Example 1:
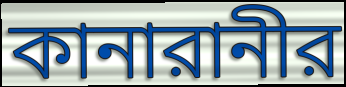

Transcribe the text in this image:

কানারানীর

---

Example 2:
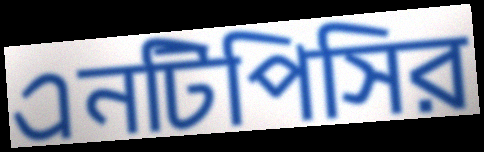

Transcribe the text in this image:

এনটিপিসির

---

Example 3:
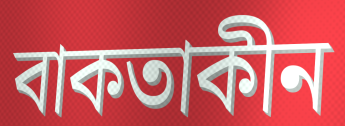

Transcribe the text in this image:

বাকতাকীন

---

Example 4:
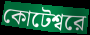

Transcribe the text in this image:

কোটেশ্বরে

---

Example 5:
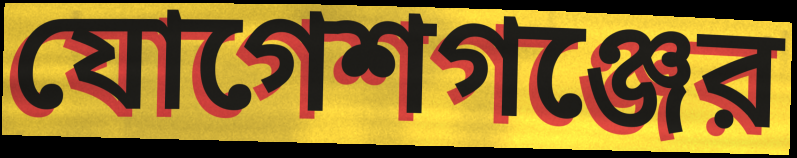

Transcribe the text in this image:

যোগেশগঞ্জের